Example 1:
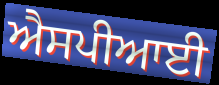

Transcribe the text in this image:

ਐਸਪੀਆਈ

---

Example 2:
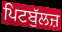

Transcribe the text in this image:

ਪਿਟਬੁੱਲਜ਼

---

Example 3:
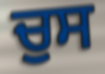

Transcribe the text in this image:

ਚੁਸ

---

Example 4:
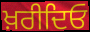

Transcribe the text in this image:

ਖ਼ਰੀਦਿਓ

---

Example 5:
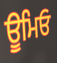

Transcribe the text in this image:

ਊਮਿਓ